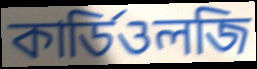
কার্ডিওলজি